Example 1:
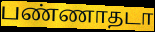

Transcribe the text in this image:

பண்ணாதடா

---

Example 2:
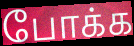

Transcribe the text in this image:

போக்க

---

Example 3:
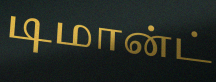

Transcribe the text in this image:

டிமான்ட்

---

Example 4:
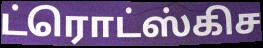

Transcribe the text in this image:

ட்ரொட்ஸ்கிச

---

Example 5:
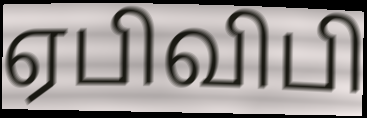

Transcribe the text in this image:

ஏபிவிபி